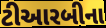
ટીઆરબીના